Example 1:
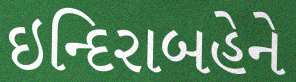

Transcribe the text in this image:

ઇન્દિરાબહેને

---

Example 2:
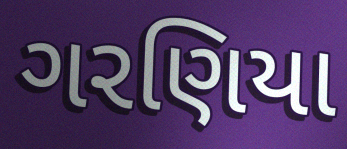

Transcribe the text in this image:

ગરણિયા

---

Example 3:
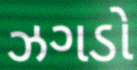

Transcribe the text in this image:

ઝગડો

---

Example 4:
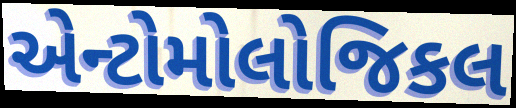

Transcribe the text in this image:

એન્ટોમોલોજિકલ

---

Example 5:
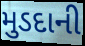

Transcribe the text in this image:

મુડદાની